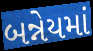
બન્નેયમાં